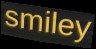
smiley